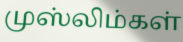
முஸ்லிம்கள்